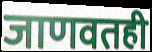
जाणवतही